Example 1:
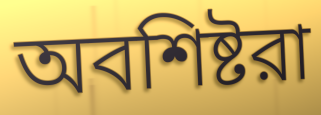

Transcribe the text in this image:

অবশিষ্টরা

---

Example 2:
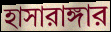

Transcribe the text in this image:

হাসারাঙ্গার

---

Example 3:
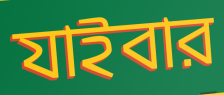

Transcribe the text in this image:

যাইবার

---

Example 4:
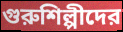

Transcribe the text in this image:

গুরুশিল্পীদের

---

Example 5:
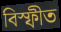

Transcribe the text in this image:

বিস্ফীত